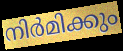
നിർമിക്കും